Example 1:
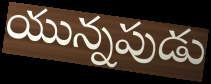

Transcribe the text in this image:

యున్నపుడు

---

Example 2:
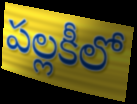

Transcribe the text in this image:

పల్లకీలో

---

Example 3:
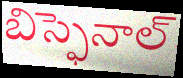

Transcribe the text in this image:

బిస్ఫెనాల్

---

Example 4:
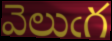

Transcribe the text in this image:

వెలుఁగ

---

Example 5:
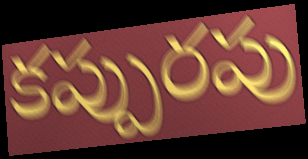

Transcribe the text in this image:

కప్పురపు